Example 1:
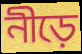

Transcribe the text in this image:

নীড়ে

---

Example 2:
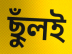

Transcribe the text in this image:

ছুঁলই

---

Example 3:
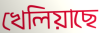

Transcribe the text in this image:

খেলিয়াছে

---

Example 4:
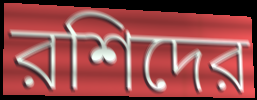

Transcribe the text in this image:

রশিদের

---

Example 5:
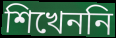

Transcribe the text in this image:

শিখেননি